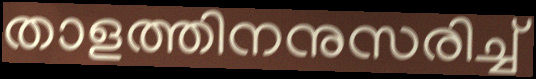
താളത്തിനനുസരിച്ച്